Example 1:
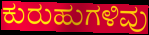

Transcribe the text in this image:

ಕುರುಹುಗಳಿವು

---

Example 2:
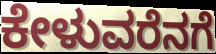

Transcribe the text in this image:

ಕೇಳುವರೆನಗೆ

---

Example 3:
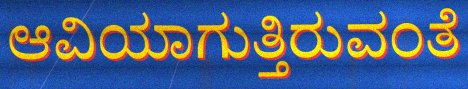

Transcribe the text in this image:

ಆವಿಯಾಗುತ್ತಿರುವಂತೆ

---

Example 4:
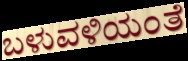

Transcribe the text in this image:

ಬಳುವಳಿಯಂತೆ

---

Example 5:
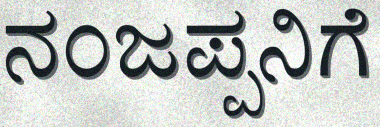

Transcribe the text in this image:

ನಂಜಪ್ಪನಿಗೆ